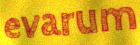
evarum